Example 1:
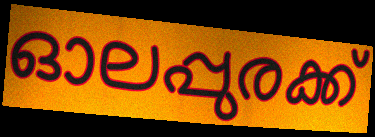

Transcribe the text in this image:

ഓലപ്പുരക്ക്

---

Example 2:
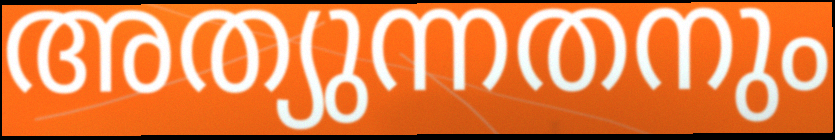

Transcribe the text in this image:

അത്യുന്നതനും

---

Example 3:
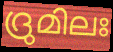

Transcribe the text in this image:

ദ്രുമിലഃ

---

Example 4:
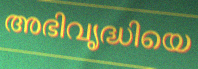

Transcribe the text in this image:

അഭിവൃദ്ധിയെ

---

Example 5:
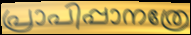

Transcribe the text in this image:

പ്രാപിപ്പാനത്രേ